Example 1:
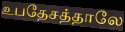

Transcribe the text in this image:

உபதேசத்தாலே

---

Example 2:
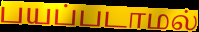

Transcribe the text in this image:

பயப்படாமல்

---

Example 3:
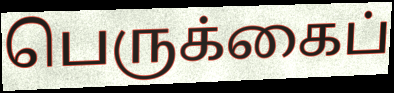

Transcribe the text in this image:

பெருக்கைப்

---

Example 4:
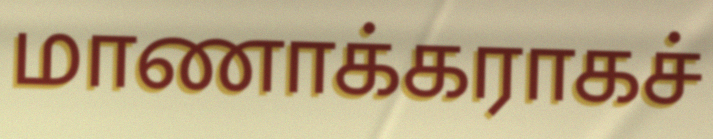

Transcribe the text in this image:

மாணாக்கராகச்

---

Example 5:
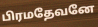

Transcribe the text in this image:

பிரமதேவனே